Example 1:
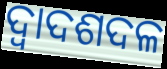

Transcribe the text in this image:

ଦ୍ୱାଦଶଦଳ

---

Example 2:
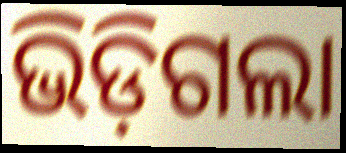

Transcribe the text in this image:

ଭିଡ଼ିଗଲା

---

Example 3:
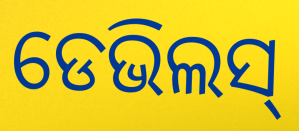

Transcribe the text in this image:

ଡେଭିଲସ୍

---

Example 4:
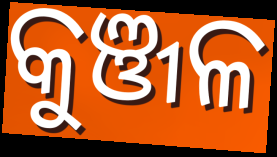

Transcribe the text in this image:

କୁଞ୍ଜଳ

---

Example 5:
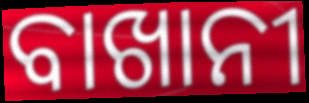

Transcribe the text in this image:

ବାଖାନୀ